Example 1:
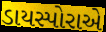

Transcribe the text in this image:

ડાયસ્પોરાએ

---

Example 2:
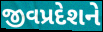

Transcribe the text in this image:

જીવપ્રદેશને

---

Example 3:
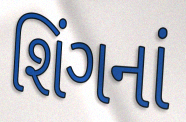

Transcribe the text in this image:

શિંગનાં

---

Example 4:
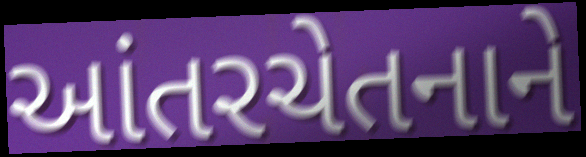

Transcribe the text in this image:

આંતરચેતનાને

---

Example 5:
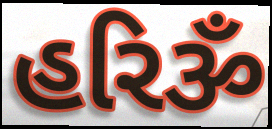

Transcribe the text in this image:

હરિૐ